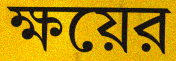
ক্ষয়ের